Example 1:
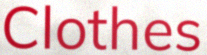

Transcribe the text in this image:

Clothes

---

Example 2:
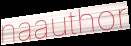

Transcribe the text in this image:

naauthor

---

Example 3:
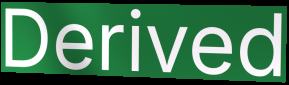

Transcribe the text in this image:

Derived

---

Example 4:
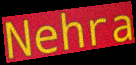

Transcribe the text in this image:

Nehra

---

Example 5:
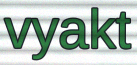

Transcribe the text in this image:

vyakt